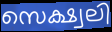
സെക്ഷ്വലി